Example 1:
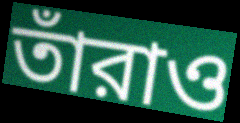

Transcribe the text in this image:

তাঁরাও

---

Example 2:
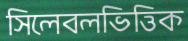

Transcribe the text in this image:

সিলেবলভিত্তিক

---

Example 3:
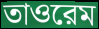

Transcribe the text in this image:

তাওরেম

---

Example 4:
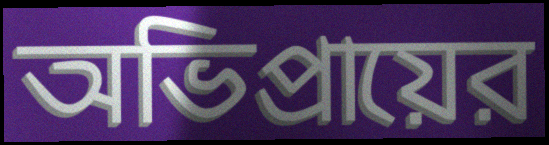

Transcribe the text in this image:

অভিপ্রায়ের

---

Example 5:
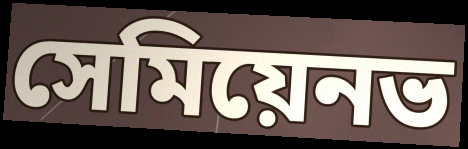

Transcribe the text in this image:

সেমিয়েনভ